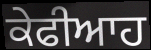
ਕੇਫੀਆਹ